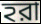
হরা